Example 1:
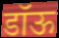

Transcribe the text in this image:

डॉऊ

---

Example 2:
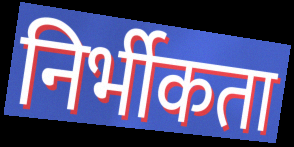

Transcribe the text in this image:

निर्भीकता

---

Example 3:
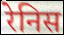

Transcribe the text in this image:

रेनिस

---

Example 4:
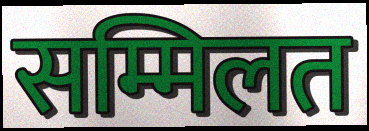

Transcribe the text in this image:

सम्मिलत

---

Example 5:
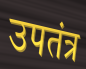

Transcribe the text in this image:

उपतंत्र